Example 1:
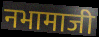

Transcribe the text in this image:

नभामाजी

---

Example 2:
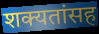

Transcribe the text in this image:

शक्यतांसह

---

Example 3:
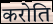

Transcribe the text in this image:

करोति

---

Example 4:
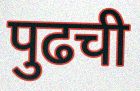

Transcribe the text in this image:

पुढची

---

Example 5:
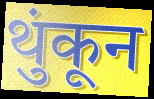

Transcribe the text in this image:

थुंकून